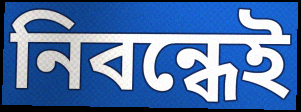
নিবন্ধেই